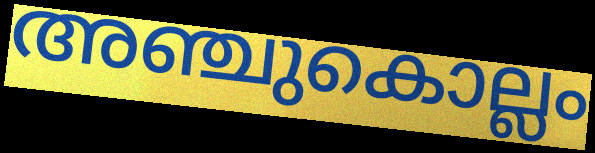
അഞ്ചുകൊല്ലം